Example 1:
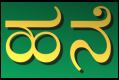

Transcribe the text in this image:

ಹನೆ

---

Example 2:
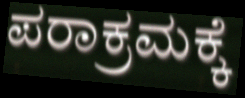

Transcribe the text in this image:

ಪರಾಕ್ರಮಕ್ಕೆ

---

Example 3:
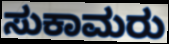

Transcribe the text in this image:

ಸುಕಾಮರು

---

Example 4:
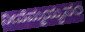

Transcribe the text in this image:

ನೀವೆಮ್ಮಯ್ಯನಂ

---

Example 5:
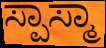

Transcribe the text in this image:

ಸ್ಪಾಸ್ಮಾ